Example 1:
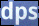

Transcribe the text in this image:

dps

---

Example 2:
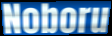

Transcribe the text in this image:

Noboru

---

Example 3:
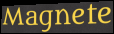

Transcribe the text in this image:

Magnete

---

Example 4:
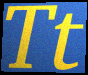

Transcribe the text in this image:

Tt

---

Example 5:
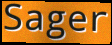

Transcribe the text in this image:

Sager